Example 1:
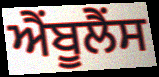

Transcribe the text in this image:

ਐਂਬੂਲੈਂਸ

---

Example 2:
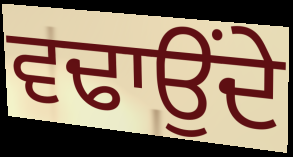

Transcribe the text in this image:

ਵਢਾਉਂਦੇ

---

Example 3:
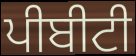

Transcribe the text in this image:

ਪੀਬੀਟੀ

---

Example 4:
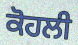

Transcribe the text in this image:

ਕੋਹਲੀ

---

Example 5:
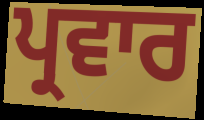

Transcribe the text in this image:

ਪ੍ਰਵਾਰ